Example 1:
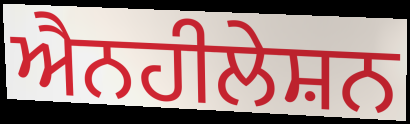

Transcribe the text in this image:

ਐਨਹੀਲੇਸ਼ਨ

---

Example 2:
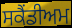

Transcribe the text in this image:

ਸਕੈਂਡੀਅਮ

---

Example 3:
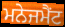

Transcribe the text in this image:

ਮਨੇਜਮੈਂਟ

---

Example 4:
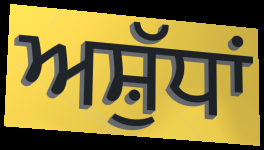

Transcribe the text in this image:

ਅਸ਼ੁੱਧਾਂ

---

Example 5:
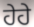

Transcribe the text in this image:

ਹੇਹੇ